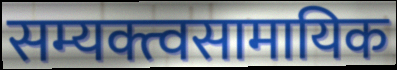
सम्यक्त्वसामायिक